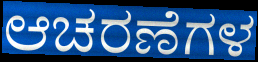
ಆಚರಣೆಗಳ